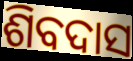
ଶିବଦାସ